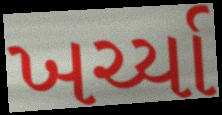
ખર્ચ્યા